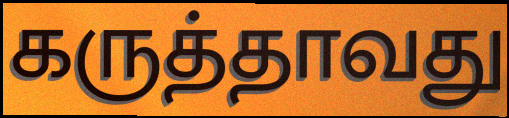
கருத்தாவது